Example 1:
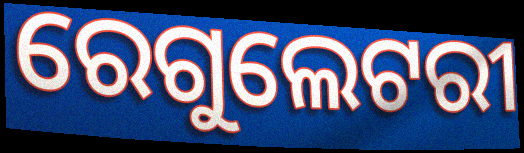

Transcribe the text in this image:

ରେଗୁଲେଟରୀ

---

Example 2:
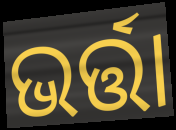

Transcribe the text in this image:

ଭର୍ତ୍ତା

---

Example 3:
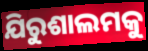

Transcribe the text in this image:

ଯିରୁଶାଲମକୁ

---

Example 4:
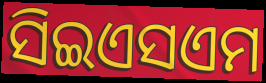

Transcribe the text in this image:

ସିଇଏସଏମ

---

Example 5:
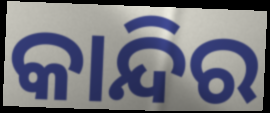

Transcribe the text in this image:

କାନ୍ଦିର